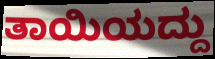
ತಾಯಿಯದ್ದು